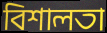
বিশালতা